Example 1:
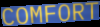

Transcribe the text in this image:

COMFORT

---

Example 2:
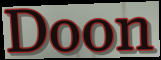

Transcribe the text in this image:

Doon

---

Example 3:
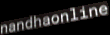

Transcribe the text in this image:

nandhaonline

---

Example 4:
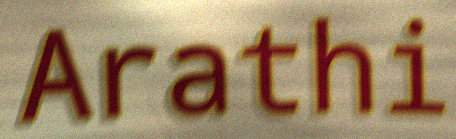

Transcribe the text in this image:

Arathi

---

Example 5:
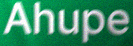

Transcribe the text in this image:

Ahupe